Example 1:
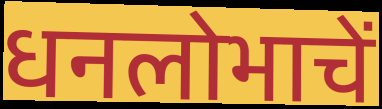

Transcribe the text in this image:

धनलोभाचें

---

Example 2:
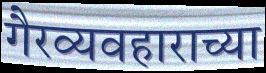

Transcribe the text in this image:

गैरव्यवहाराच्या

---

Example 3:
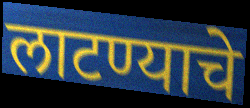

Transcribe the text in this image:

लाटण्याचे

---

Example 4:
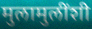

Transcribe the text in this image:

मुलामुलींशी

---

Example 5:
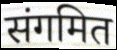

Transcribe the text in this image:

संगमित